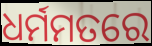
ଧର୍ମମତରେ